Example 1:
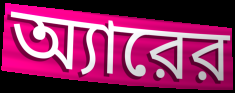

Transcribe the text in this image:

অ্যারের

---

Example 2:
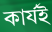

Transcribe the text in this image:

কার্যই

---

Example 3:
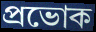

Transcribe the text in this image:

প্রভোক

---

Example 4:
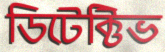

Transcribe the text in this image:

ডিটেক্টিভ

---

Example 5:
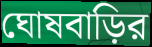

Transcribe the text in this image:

ঘোষবাড়ির